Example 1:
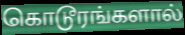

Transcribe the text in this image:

கொடூரங்களால்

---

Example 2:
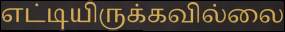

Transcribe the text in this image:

எட்டியிருக்கவில்லை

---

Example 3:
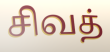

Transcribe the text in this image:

சிவத்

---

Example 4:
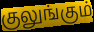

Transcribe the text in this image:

குலுங்கும்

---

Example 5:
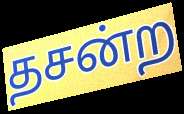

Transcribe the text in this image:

தசன்ற